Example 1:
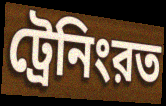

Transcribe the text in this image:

ট্রেনিংরত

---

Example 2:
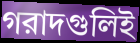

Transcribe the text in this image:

গরাদগুলিই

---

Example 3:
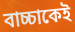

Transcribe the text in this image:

বাচ্চাকেই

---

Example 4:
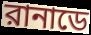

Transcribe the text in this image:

রানাডে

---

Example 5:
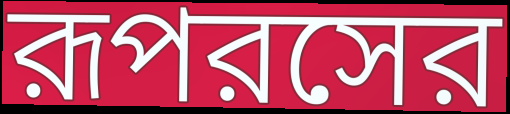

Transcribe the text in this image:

রূপরসের